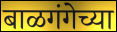
बाळगंगेच्या